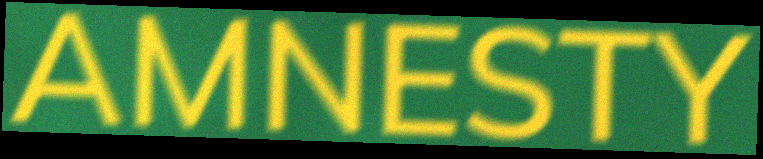
AMNESTY